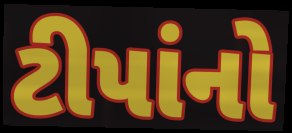
ટીપાંનો